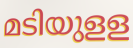
മടിയുളള